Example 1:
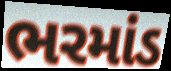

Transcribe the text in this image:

ભરમાંડ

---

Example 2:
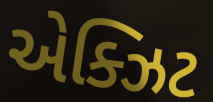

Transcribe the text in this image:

એક્ઝિટ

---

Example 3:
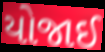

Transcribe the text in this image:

યોજાઈ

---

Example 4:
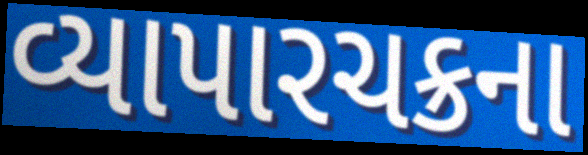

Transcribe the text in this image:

વ્યાપારચક્રના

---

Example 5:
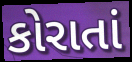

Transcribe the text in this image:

કોરાતાં